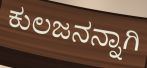
ಕುಲಜನನ್ನಾಗಿ